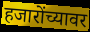
हजारोंच्यावर